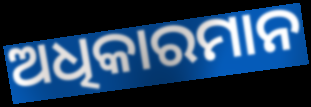
ଅଧିକାରମାନ